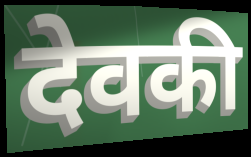
देवकी